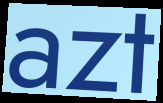
azt